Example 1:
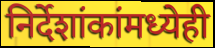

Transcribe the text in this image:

निर्देशांकांमध्येही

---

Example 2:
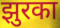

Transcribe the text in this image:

झुरका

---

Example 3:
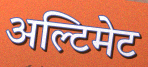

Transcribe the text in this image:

अल्टिमेट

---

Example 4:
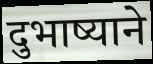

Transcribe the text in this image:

दुभाष्याने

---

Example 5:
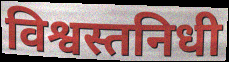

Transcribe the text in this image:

विश्वस्तनिधी